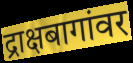
द्राक्षबागांवर